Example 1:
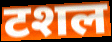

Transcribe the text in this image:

टशल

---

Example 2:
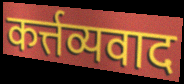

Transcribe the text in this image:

कर्त्तव्यवाद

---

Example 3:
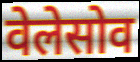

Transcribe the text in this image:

वेलेसोव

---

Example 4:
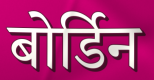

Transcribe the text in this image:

बोर्डिन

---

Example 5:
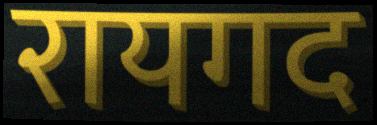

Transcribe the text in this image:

रायगद